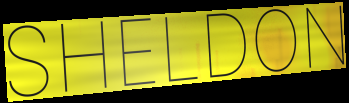
SHELDON